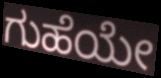
ಗುಹೆಯೇ